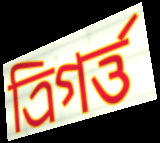
ত্রিগর্ত্ত